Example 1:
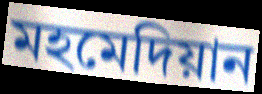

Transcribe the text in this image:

মহমেদিয়ান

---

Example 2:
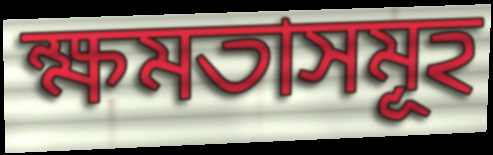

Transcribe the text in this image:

ক্ষমতাসমূহ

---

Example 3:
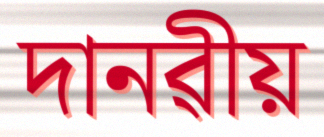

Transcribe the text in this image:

দানৱীয়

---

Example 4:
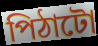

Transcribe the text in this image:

পিঠাটো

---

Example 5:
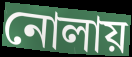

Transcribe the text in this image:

নোলায়